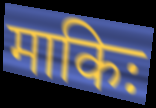
माकिः